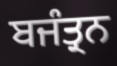
ਬਜੰਤ੍ਰਨ